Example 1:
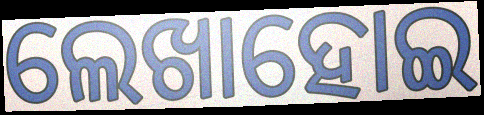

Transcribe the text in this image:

ଲେଖାହୋଇ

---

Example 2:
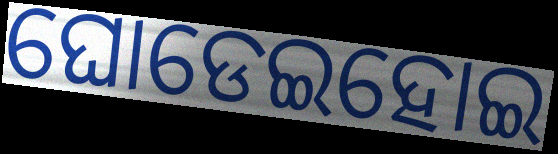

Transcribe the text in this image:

ଘୋଡେଇହୋଇ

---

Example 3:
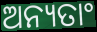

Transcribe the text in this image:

ଅନ୍ୟତାଂ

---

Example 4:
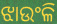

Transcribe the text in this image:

ଝାଉଂଳି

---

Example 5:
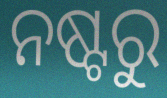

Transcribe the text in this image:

ନଷ୍ଟରୁ